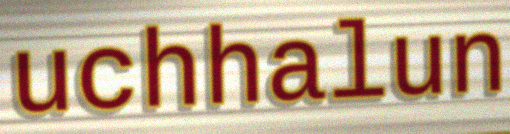
uchhalun